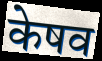
केषव